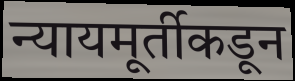
न्यायमूर्तीकडून